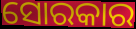
ସୋରକାର